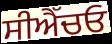
ਸੀਐੱਚਓ